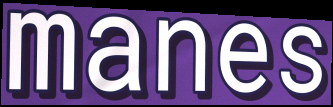
manes